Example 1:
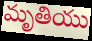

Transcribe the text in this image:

మృతియు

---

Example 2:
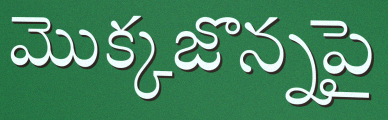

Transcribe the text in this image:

మొక్కజొన్నపై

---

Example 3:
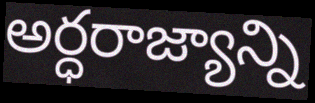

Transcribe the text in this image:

అర్ధరాజ్యాన్ని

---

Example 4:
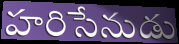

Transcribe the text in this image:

హరిసేనుడు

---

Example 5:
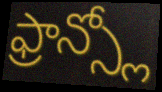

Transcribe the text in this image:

ఫ్రాన్స్లో